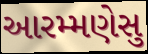
આરમ્મણેસુ